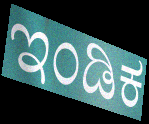
ಇಂಡಿಕ